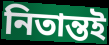
নিতান্তই